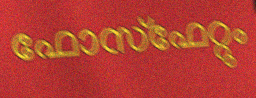
ഫോസ്ഫേറ്റും